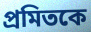
প্রমিতকে